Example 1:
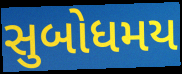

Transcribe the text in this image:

સુબોધમય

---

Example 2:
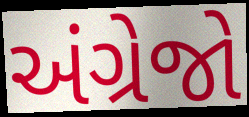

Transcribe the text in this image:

અંગ્રેજો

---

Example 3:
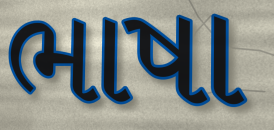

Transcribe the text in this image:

ભાષા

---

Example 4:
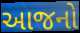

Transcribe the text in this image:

આજનો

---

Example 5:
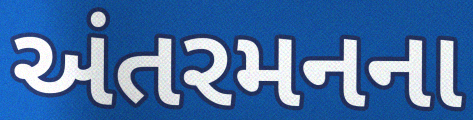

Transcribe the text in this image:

અંતરમનના